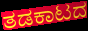
ತಡಕಾಟದ